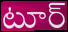
టూర్